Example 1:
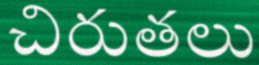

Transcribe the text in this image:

చిరుతలు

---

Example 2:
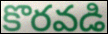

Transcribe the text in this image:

కొరవడి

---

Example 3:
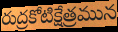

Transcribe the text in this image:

రుద్రకోటిక్షేత్రమున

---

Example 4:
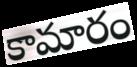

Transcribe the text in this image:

కామారం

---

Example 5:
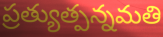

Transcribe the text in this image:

ప్రత్యుత్పన్నమతి